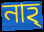
নাহ্